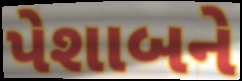
પેશાબને